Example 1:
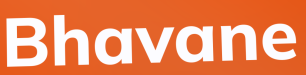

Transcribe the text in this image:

Bhavane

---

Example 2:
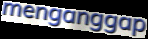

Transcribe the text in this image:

menganggap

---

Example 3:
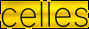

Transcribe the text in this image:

celles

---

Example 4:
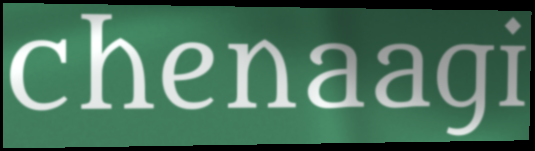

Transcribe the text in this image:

chenaagi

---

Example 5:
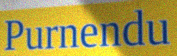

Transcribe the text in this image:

Purnendu